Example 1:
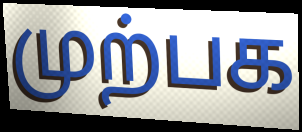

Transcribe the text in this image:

முற்பக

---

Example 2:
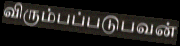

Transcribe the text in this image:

விரும்பப்படுபவன்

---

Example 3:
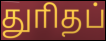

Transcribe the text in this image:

துரிதப்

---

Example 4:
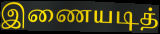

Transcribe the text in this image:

இணையடித்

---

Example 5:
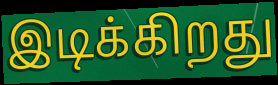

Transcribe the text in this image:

இடிக்கிறது